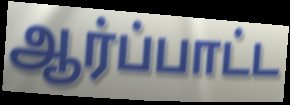
ஆர்ப்பாட்ட